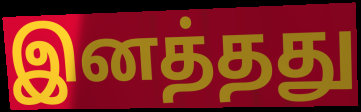
இனத்தது